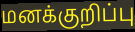
மனக்குறிப்பு